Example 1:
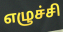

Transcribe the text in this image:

எழுச்சி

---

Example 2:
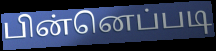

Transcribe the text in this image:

பின்னெப்படி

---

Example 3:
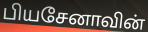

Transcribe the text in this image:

பியசேனாவின்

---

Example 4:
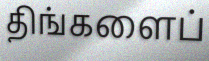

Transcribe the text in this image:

திங்களைப்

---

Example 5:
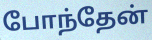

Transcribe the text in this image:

போந்தேன்